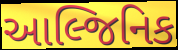
આલ્જિનિક